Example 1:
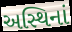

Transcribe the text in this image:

અસ્થિનાં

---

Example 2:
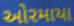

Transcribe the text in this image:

ઓરમાયા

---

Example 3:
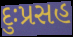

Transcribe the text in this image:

દુઃપ્રસહ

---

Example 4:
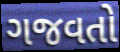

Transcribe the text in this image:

ગજવતો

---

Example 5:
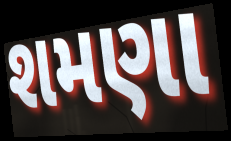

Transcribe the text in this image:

શમણા